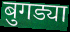
बुगड्या